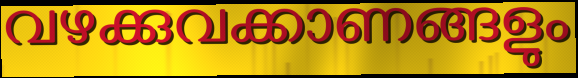
വഴക്കുവക്കാണങ്ങളും